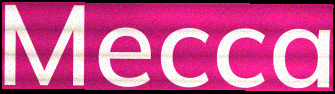
Mecca